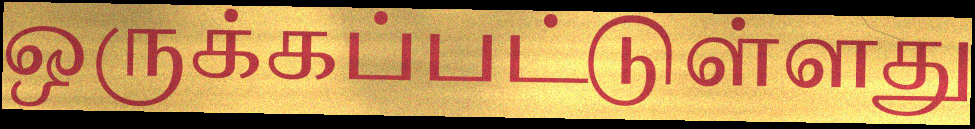
ஒருக்கப்பட்டுள்ளது